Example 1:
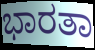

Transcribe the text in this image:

ಭಾರತಾ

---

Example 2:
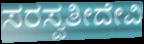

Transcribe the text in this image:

ಸರಸ್ವತೀದೇವಿ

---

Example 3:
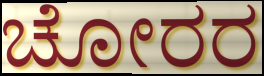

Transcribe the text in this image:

ಚೋರರ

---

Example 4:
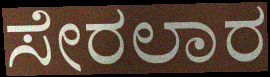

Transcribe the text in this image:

ಸೇರಲಾರ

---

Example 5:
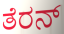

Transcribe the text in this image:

ತೆರನ್